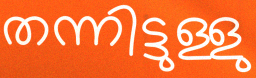
തന്നിട്ടുള്ളു